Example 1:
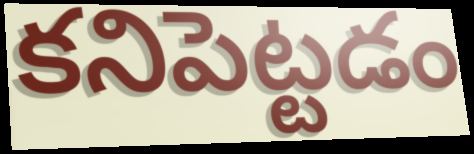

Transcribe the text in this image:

కనిపెట్టడం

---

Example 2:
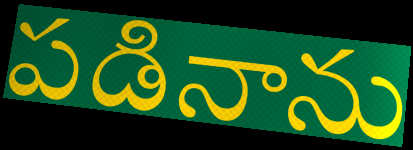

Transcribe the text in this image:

పడినాను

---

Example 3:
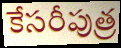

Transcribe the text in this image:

కేసరీపుత్ర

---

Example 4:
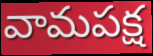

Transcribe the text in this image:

వామపక్ష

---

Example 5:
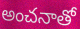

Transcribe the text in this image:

అంచనాతో